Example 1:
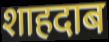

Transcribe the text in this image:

शाहदाब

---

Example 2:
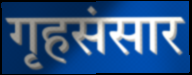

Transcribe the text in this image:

गृहसंसार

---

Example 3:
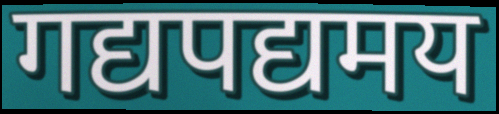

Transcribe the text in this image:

गद्यपद्यमय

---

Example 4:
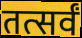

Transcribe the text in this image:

तत्सर्वं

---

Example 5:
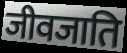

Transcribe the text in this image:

जीवजाति